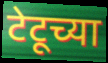
टेटूच्या